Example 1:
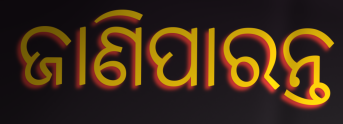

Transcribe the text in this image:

ଜାଣିପାରନ୍ତ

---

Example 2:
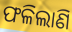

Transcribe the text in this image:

ଫଳିଲାଣି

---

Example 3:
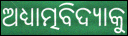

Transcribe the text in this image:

ଅଧ୍ୟାତ୍ମବିଦ୍ୟାକୁ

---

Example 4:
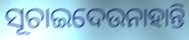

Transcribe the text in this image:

ସୂଚାଇଦେଉନାହାନ୍ତି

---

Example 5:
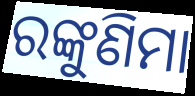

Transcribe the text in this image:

ରଙ୍କୁଣିମା